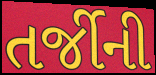
તર્જીની